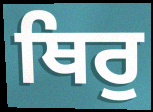
ਥਿਰੁ